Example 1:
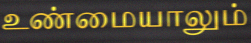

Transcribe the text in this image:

உண்மையாலும்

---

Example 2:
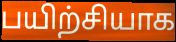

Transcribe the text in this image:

பயிற்சியாக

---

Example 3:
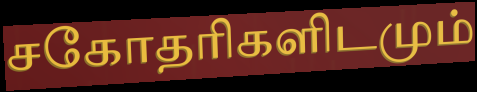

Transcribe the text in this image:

சகோதரிகளிடமும்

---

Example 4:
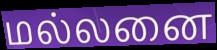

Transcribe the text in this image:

மல்லனை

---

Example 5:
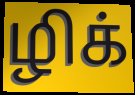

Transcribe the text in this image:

ழிக்